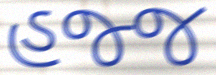
હજ્જ